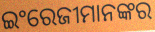
ଇଂରେଜୀମାନଙ୍କର